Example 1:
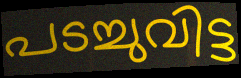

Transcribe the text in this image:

പടച്ചുവിട്ട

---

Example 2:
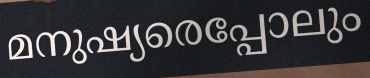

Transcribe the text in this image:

മനുഷ്യരെപ്പോലും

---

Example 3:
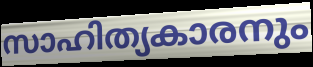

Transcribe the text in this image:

സാഹിത്യകാരനും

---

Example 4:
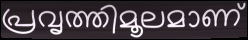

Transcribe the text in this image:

പ്രവൃത്തിമൂലമാണ്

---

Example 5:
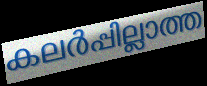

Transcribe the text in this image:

കലർപ്പില്ലാത്ത